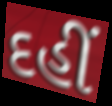
દહીં